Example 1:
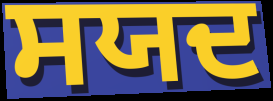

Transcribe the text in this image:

ਸਯਦ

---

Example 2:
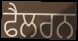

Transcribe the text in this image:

ਫੈਲਰਨ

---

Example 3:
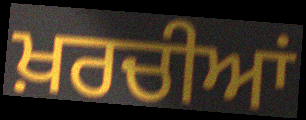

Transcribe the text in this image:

ਖ਼ਰਚੀਆਂ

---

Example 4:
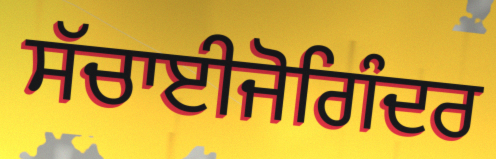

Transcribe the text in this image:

ਸੱਚਾਈਜੋਗਿੰਦਰ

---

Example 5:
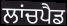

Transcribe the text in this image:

ਲਾਂਚਪੈਡ